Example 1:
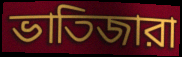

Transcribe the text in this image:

ভাতিজারা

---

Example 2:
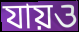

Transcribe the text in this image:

যায়ও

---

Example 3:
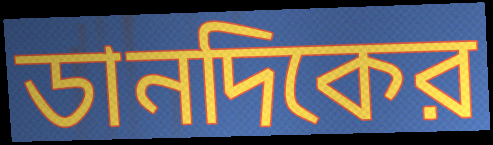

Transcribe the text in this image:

ডানদিকের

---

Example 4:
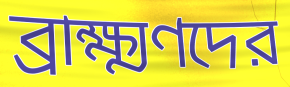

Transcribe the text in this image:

ব্রাক্ষ্মণদের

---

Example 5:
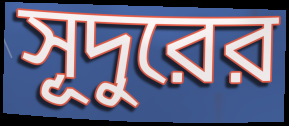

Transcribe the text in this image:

সূদুরের